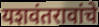
यशवंतरावांचे